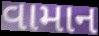
વામાન